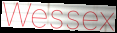
Wessex